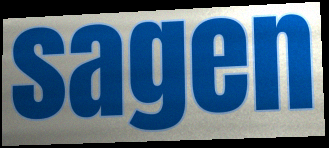
sagen